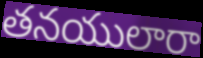
తనయులారా